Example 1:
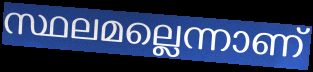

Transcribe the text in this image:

സ്ഥലമല്ലെന്നാണ്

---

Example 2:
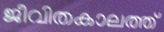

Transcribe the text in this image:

ജീവിതകാലത്ത്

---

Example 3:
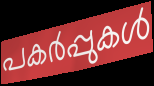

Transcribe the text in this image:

പകർപ്പുകൾ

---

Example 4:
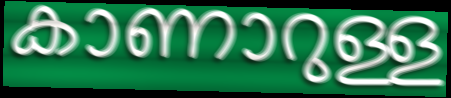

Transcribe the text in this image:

കാണാറുള്ള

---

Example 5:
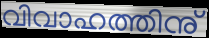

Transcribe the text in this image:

വിവാഹത്തിനു്